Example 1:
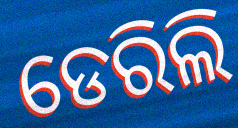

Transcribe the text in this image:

ଡେରିଲି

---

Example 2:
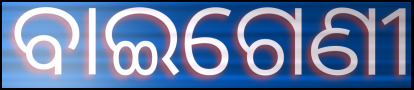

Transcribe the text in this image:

ବାଇଗେଣୀ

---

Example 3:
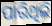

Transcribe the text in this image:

ପାରିଥିଲି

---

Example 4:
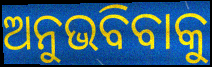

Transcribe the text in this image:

ଅନୁଭବିବାକୁ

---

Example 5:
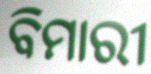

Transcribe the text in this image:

ବିମାରୀ